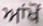
ਆਂਖੋਂ